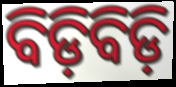
ବିଡ଼ିବିଡ଼ି